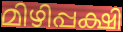
മിഴിപ്പക്ഷി